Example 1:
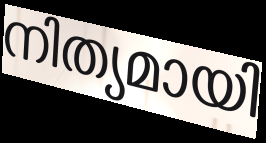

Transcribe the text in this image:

നിത്യമായി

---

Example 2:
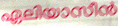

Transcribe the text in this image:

ഏലിയാസീൻ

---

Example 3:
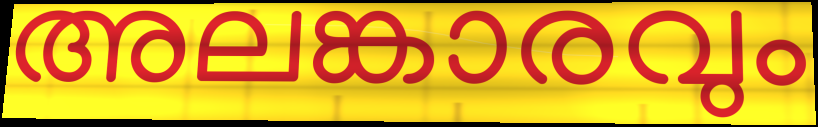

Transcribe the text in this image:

അലങ്കാരവും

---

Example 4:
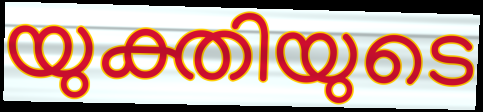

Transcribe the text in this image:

യുക്തിയുടെ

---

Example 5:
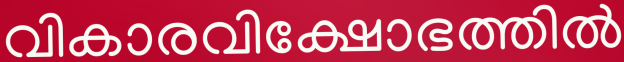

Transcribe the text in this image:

വികാരവിക്ഷോഭത്തിൽ